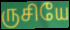
ருசியே